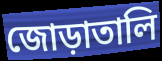
জোড়াতালি